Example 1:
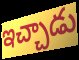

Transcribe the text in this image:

ఇచ్చాడు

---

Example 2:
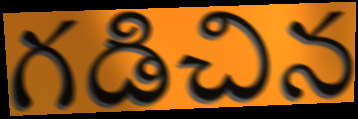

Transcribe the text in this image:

గడిచిన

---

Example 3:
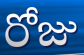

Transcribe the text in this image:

రోజు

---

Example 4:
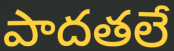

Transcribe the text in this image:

పాదతలే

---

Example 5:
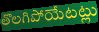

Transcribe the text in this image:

తొలగిపోయేటట్లు